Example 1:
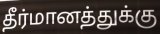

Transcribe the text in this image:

தீர்மானத்துக்கு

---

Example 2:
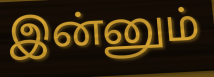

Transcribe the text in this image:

இன்னும்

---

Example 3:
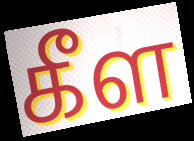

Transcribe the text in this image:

கீள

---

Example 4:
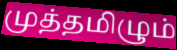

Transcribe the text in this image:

முத்தமிழும்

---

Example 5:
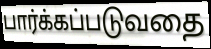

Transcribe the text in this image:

பார்க்கப்படுவதை